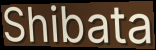
Shibata